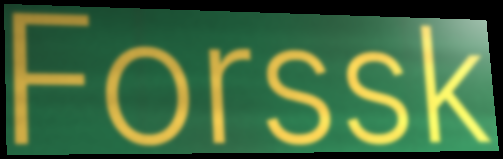
Forssk